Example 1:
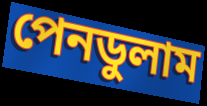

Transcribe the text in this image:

পেনডুলাম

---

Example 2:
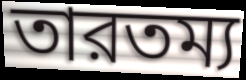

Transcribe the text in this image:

তারতম্য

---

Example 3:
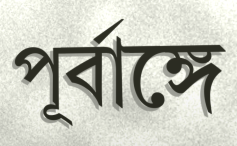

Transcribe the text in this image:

পূর্বাঙ্গে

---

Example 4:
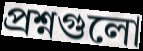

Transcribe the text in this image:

প্রশ্নগুলো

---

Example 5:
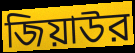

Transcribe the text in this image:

জিয়াউর